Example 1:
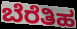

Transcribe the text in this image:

ಬೆರೆತಿಹ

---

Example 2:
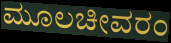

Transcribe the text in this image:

ಮೂಲಚೀವರಂ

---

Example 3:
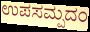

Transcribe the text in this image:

ಉಪಸಮ್ಪದಂ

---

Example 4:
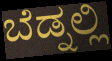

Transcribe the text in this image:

ಬೆಡ್ನಲ್ಲಿ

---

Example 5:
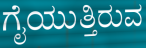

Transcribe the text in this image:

ಗೈಯುತ್ತಿರುವ